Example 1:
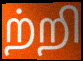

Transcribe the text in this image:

ற்றி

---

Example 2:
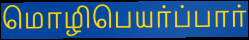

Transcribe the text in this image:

மொழிபெயர்ப்பார்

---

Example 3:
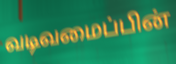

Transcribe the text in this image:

வடிவமைப்பின்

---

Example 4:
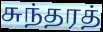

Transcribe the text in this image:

சுந்தரத்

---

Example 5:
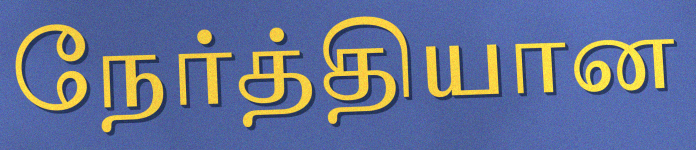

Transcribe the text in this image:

நேர்த்தியான